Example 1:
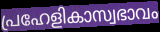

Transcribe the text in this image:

പ്രഹേളികാസ്വഭാവം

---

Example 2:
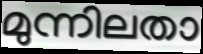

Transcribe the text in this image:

മുന്നിലതാ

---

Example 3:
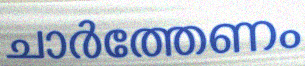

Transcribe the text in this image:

ചാർത്തേണം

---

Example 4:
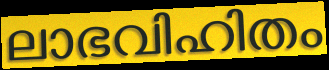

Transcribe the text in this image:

ലാഭവിഹിതം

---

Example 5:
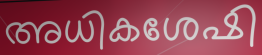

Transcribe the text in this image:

അധികശേഷി